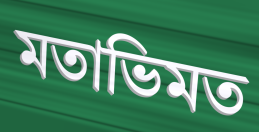
মতাভিমত